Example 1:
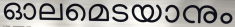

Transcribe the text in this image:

ഓലമെടയാനും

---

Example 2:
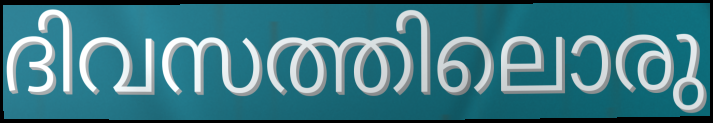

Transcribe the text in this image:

ദിവസത്തിലൊരു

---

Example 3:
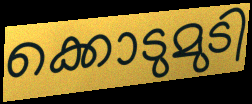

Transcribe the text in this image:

ക്കൊടുമുടി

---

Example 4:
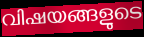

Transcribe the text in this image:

വിഷയങ്ങളുടെ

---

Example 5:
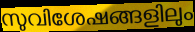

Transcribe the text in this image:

സുവിശേഷങ്ങളിലും